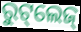
ରୁଟ୍‌ଲେଜ୍